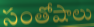
సంతోషాలు